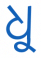
ଧୁ